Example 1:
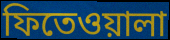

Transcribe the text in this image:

ফিতেওয়ালা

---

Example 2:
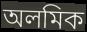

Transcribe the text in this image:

অলমিক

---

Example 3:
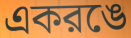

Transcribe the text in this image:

একরঙে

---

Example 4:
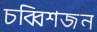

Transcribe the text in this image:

চব্বিশজন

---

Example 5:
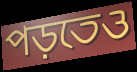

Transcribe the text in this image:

পড়তেও